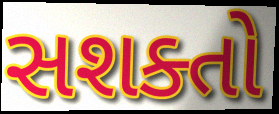
સશક્તો